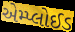
એમ્પ્લોઈડ